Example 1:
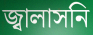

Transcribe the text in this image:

জ্বালাসনি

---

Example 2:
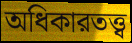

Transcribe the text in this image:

অধিকারতত্ত্ব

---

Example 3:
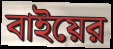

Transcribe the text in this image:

বাইয়ের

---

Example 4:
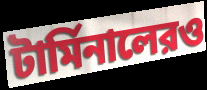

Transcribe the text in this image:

টার্মিনালেরও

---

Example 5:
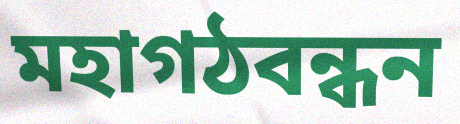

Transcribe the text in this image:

মহাগঠবন্ধন